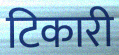
टिकारी